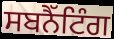
ਸਬਨੈੱਟਿੰਗ